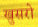
खुसरो